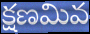
క్షణమివ